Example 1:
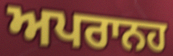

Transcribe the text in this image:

ਅਪਰਾਨਹ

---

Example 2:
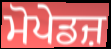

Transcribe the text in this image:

ਮੋਪੇਡਜ਼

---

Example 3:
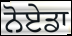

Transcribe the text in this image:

ਨੋਏਡਾ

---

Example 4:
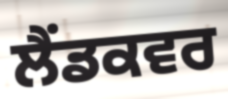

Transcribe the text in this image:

ਲੈਂਡਕਵਰ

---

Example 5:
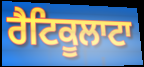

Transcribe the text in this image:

ਰੈਟਿਕੂਲਾਟਾ